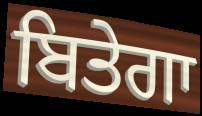
ਬਿਤੇਗਾ